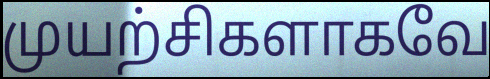
முயற்சிகளாகவே